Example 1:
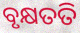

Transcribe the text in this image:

ବୃକ୍ଷତତି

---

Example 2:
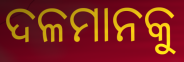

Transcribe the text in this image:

ଦଳମାନକୁ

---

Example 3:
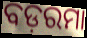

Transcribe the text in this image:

ବଡ଼ରମା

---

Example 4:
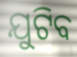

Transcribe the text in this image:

ଯୁଟିବ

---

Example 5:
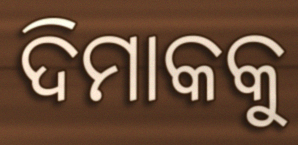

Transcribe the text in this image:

ଦିମାକକୁ